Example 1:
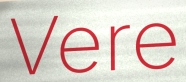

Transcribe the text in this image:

Vere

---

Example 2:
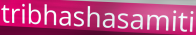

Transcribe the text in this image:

tribhashasamiti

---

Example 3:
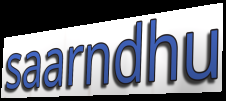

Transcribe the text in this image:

saarndhu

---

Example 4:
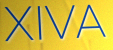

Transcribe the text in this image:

XIVA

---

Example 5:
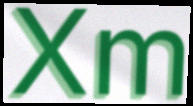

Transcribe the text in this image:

Xm